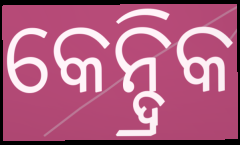
କେନ୍ଦ୍ରିକ